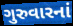
ગુરુવારનાં